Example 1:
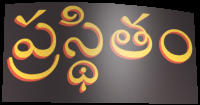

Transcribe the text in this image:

ప్రస్థితం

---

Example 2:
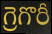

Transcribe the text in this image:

గ్రెగొరీ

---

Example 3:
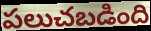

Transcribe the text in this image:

పలుచబడింది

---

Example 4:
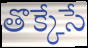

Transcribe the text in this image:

తొక్కేసే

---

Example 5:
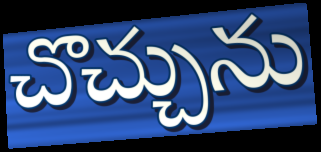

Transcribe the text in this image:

చొచ్చును